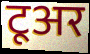
टूअर